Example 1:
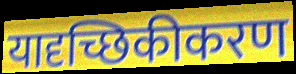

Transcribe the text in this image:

यादृच्छिकीकरण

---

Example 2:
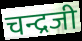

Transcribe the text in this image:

चन्द्रजी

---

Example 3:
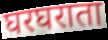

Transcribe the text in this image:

घरघराता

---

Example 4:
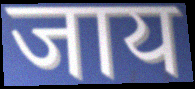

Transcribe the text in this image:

जाय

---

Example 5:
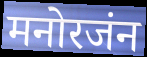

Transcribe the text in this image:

मनोरजंन